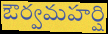
ఔర్వమహర్షి